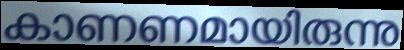
കാണണമായിരുന്നു